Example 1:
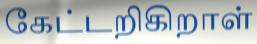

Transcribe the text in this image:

கேட்டறிகிறாள்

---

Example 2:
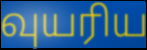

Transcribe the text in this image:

வுயரிய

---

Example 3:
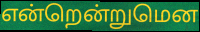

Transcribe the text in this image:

என்றென்றுமென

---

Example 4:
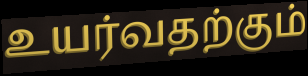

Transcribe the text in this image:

உயர்வதற்கும்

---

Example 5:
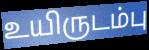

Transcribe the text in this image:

உயிருடம்பு